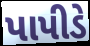
પાપીડે